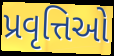
પ્રવૃત્તિઓ